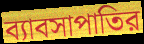
ব্যাবসাপাতির